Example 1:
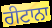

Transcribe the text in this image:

ਰੀਟਾਨਾ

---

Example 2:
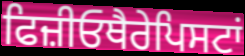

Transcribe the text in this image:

ਫਿਜ਼ੀਓਥੈਰੇਪਿਸਟਾਂ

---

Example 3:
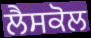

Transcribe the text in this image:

ਲੈਸਕੋਲ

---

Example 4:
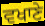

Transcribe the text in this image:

ਵਖਾਣੇ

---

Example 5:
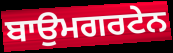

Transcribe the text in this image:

ਬਾਉਮਗਰਟੇਨ